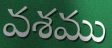
వశము